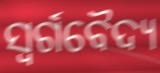
ସ୍ୱର୍ଗବୈଦ୍ୟ